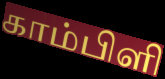
காம்பிளி